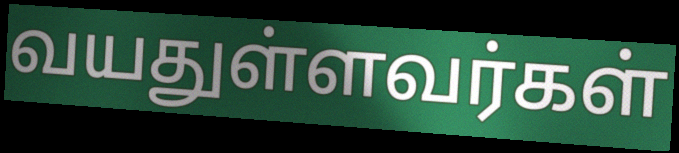
வயதுள்ளவர்கள்